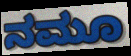
ನಮೂ